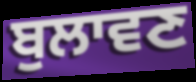
ਬੁਲਾਵਣ